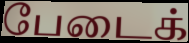
பேடைக்